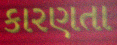
કારણતા